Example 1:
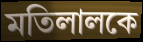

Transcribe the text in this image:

মতিলালকে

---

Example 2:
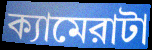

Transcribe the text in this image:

ক্যামেরাটা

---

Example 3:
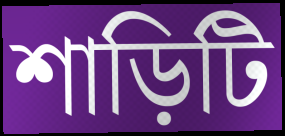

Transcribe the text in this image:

শাড়িটি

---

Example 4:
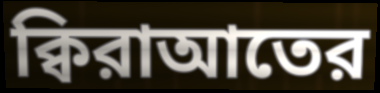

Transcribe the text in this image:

ক্বিরাআতের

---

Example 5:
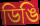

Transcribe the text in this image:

ডিঙি